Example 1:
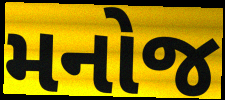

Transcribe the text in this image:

મનોજ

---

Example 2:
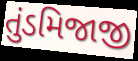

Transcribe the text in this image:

તુંડમિજાજી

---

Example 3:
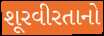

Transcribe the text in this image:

શૂરવીરતાનો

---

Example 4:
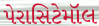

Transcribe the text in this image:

પેરાસિટેમૉલ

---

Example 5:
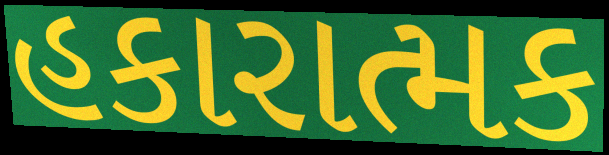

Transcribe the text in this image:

હકારાત્મક